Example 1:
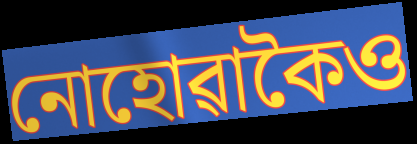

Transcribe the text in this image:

নোহোৱাকৈও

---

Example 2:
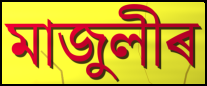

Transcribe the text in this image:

মাজুলীৰ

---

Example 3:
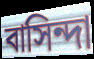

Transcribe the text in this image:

বাসিন্দা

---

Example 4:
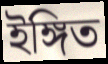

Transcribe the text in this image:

ইঙ্গিত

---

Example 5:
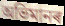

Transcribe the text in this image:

অভিমানৰ